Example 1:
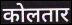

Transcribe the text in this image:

कोलतार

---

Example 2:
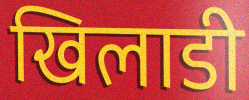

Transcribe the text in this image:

खिलाडी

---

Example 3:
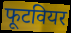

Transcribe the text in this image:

फूटवियर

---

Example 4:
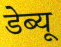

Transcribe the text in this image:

डेब्यू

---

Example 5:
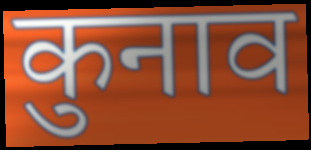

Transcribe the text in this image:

कुनाव